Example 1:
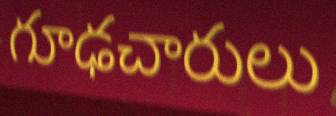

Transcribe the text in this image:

గూఢచారులు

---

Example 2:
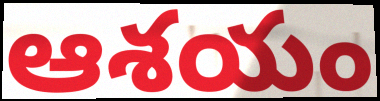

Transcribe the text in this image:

ఆశయం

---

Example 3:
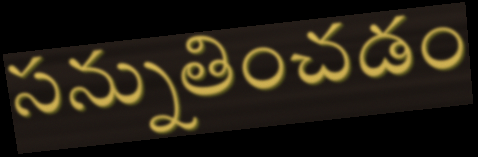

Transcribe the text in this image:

సన్నుతించడం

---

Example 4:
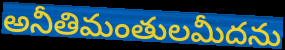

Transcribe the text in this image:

అనీతిమంతులమీదను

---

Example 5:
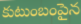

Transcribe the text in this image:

కుటుంబంపైన